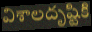
విశాలదృష్టికి